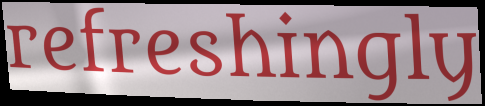
refreshingly